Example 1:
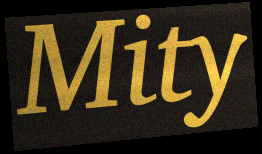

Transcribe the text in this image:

Mity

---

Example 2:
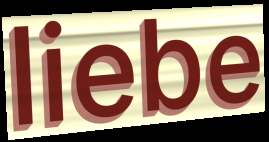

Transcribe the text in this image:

liebe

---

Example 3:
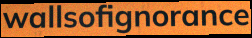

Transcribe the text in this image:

wallsofignorance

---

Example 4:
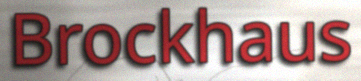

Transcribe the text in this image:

Brockhaus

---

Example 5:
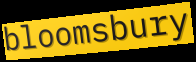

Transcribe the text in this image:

bloomsbury